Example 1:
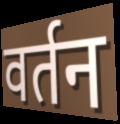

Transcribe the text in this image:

वर्तन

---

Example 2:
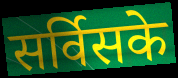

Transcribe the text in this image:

सर्विसके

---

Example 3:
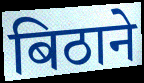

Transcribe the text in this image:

बिठाने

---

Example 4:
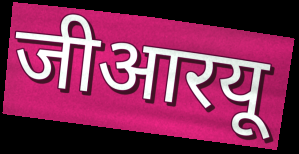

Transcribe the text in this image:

जीआरयू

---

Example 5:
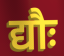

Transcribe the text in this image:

द्यौः